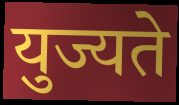
युज्यते